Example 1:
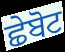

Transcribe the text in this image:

ਛੇਬੋਟ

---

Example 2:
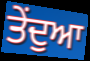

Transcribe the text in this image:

ਤੇਂਦੁਆ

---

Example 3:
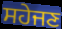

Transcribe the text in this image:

ਸਹੇਜਣ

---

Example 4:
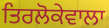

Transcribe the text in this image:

ਤਿਰਲੋਕੇਵਾਲਾ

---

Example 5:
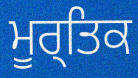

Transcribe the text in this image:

ਮੂਰ੍ਤਿਕ